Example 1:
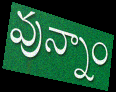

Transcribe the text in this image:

వున్నాం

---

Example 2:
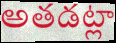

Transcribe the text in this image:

అతడట్లా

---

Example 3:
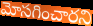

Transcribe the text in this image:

మోసగించారని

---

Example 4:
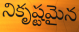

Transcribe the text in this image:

నికృష్టమైన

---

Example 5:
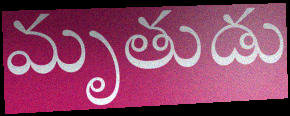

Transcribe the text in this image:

మృతుడు